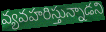
వ్యవహరిస్తున్నాడని